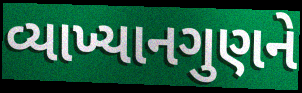
વ્યાખ્યાનગુણને